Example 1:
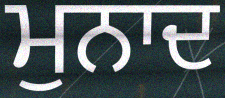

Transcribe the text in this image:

ਮੁਨਾਦ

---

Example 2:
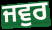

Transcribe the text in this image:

ਜਵੁਰ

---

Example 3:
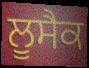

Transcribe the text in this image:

ਲੂਸੈਕ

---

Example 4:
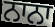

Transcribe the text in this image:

ਨਾਨਾ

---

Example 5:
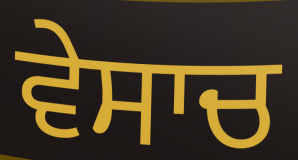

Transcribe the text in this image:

ਵੇਸਾਚ